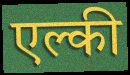
एल्की